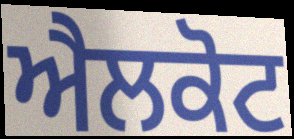
ਐਲਕੋਟ